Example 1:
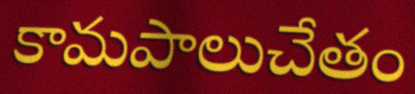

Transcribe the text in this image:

కామపాలుచేతం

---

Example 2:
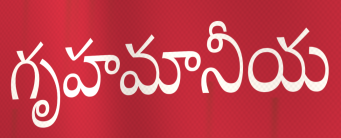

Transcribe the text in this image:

గృహమానీయ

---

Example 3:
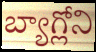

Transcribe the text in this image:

బ్యాగ్లోని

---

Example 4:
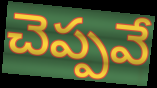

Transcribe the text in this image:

చెప్పవే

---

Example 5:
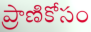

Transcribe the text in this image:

ప్రాణికోసం